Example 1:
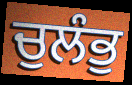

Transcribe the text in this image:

ਚੁਲੰਭੁ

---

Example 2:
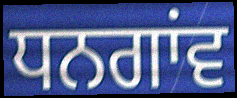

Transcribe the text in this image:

ਧਨਗਾਂਵ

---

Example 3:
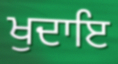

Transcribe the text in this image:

ਖੁਦਾਇ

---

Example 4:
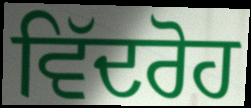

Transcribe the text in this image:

ਵਿੱਦਰੋਹ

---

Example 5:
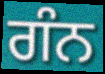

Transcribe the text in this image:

ਗੰਨ